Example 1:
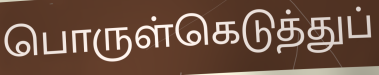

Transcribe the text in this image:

பொருள்கெடுத்துப்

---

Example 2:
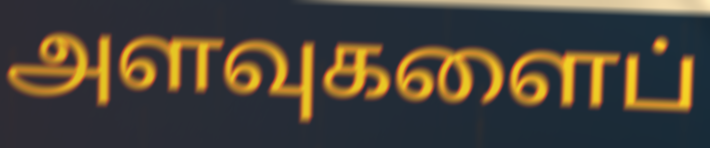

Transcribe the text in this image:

அளவுகளைப்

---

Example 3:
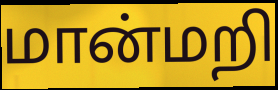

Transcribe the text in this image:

மான்மறி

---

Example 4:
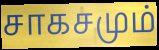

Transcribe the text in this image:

சாகசமும்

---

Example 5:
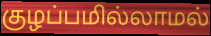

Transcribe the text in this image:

குழப்பமில்லாமல்